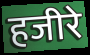
हजीरे